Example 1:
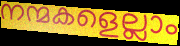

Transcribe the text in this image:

നന്മകളെല്ലാം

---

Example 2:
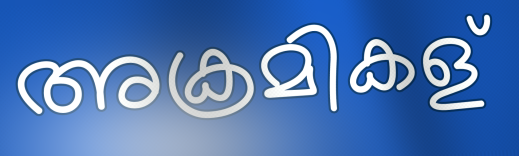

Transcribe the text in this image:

അക്രമികള്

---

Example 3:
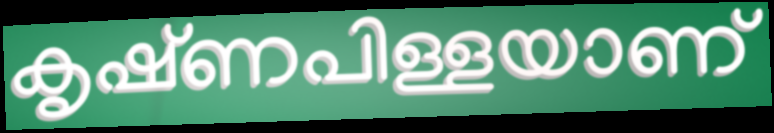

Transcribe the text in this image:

കൃഷ്‌ണപിള്ളയാണ്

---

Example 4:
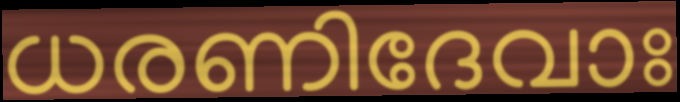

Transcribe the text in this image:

ധരണിദേവാഃ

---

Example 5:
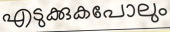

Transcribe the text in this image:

എടുക്കുകപോലും